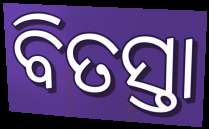
ବିତସ୍ତା